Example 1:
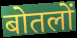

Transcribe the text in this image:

बोतलों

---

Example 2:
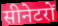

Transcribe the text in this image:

सीनेटरों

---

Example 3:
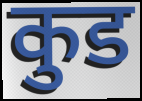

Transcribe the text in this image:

कुड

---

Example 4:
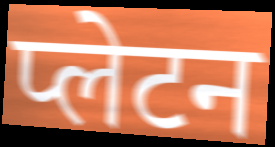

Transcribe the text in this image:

प्लेटन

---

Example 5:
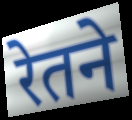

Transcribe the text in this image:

रेतने